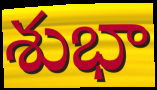
శుభా